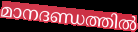
മാനദണ്ഡത്തിൽ